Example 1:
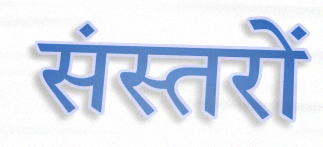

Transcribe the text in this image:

संस्तरों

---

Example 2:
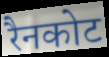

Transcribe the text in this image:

रैनकोट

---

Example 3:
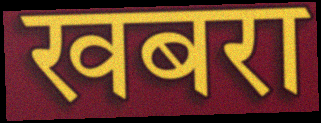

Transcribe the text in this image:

खबरा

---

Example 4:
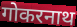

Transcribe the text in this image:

गोकरनाथ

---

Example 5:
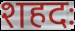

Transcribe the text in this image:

शहदः